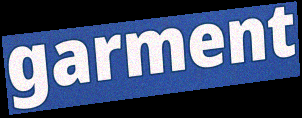
garment